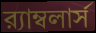
র‍্যাম্বলার্স